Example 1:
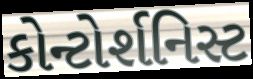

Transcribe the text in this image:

કોન્ટોર્શનિસ્ટ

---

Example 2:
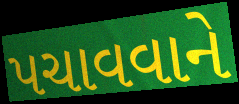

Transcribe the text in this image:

પચાવવાને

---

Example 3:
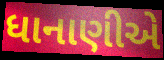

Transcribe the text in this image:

ધાનાણીએ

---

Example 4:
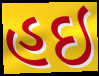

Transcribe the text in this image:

હઇ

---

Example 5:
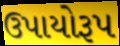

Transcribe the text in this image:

ઉપાયોરૂપ